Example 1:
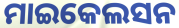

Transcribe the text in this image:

ମାଇକେଲସନ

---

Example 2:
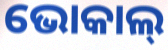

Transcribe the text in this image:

ଭୋକାଲ୍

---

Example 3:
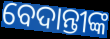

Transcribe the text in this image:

ବେଦାନ୍ତୀଙ୍କ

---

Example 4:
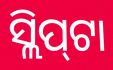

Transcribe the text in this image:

ସ୍ଲିପ୍‌ଟା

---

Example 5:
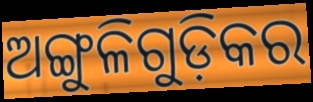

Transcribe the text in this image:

ଅଙ୍ଗୁଳିଗୁଡ଼ିକର